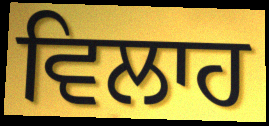
ਵਿਲਾਹ